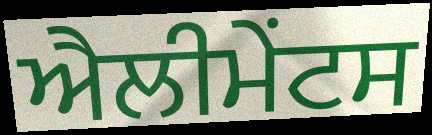
ਐਲੀਮੇੰਟਸ